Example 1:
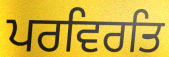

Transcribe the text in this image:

ਪਰਵਿਰਤਿ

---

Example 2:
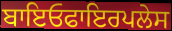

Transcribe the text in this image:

ਬਾਇਓਫਾਇਰਪਲੇਸ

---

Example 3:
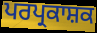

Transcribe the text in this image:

ਪਰਪ੍ਰਕਾਸ਼ਕ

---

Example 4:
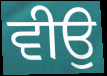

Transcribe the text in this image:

ਵੀਉ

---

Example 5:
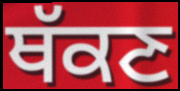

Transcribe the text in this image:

ਥੱਕਣ